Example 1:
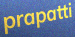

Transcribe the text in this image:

prapatti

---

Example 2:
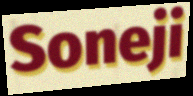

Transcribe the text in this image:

Soneji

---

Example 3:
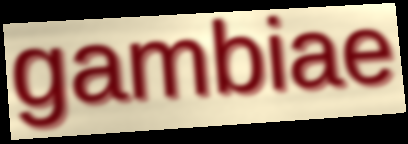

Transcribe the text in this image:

gambiae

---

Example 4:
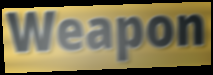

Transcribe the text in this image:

Weapon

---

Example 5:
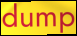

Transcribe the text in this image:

dump